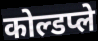
कोल्डप्ले